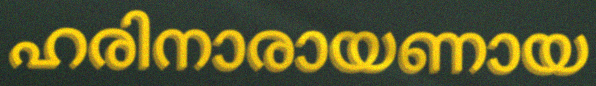
ഹരിനാരായണായ